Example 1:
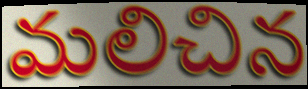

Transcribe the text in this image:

మలిచిన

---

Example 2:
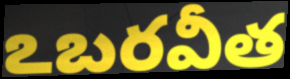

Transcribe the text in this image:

ఽబరవీత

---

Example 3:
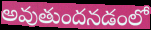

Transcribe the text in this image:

అవుతుందనడంలో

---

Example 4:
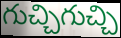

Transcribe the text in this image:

గుచ్చిగుచ్చి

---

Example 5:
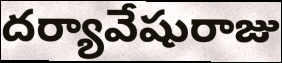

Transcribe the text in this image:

దర్యావేషురాజు